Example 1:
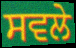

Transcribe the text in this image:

ਸਵਲੇ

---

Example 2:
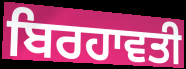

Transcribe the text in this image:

ਬਿਰਹਾਵਤੀ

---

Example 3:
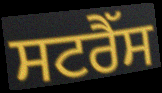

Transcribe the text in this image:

ਸਟਰੈੱਸ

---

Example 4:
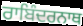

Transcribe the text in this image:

ਰਾਬਿੰਦਰਨਾਥ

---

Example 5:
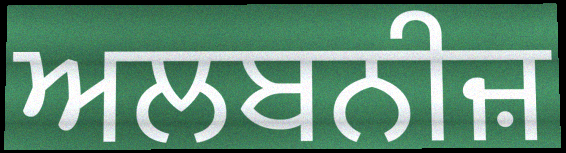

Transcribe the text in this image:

ਅਲਬਨੀਜ਼